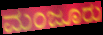
ಮಂಜೂರು